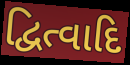
દ્વિત્વાદિ